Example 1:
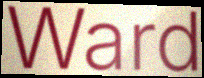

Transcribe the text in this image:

Ward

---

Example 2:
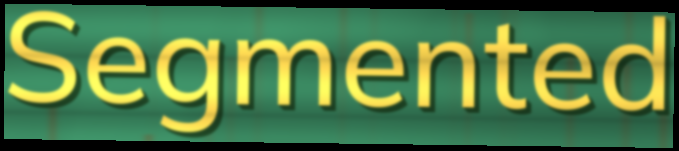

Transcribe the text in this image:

Segmented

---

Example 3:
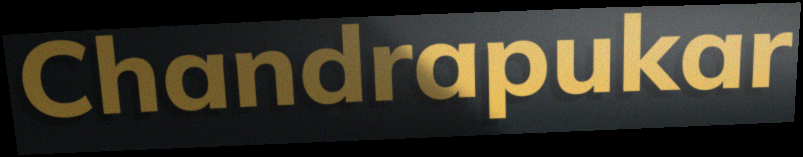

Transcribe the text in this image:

Chandrapukar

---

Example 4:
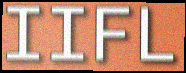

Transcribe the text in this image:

IIFL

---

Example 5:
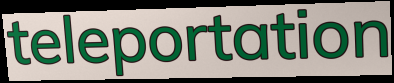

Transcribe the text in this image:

teleportation